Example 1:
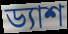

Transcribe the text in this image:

ড্যাশ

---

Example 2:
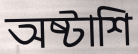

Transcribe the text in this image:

অষ্টাশি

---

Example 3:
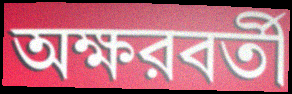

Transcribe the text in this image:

অক্ষরবর্তী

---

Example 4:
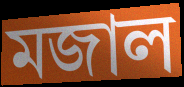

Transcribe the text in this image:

মজাল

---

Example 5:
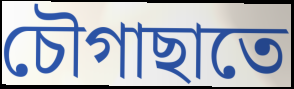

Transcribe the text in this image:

চৌগাছাতে